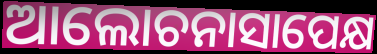
ଆଲୋଚନାସାପେକ୍ଷ